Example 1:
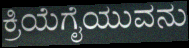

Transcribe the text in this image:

ಕ್ರಿಯೆಗೈಯುವನು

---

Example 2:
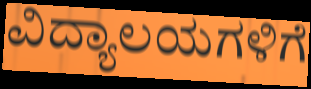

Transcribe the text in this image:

ವಿದ್ಯಾಲಯಗಳಿಗೆ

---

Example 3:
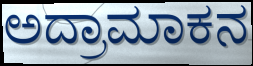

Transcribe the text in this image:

ಅದ್ರಾಮಾಕನ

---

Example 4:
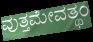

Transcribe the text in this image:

ವುತ್ತಮೇವತ್ಥಂ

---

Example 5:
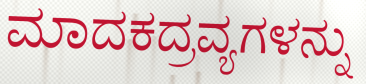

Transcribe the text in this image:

ಮಾದಕದ್ರವ್ಯಗಳನ್ನು